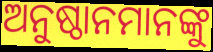
ଅନୁଷ୍ଠାନମାନଙ୍କୁ